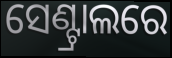
ସେଣ୍ଟ୍ରାଲରେ